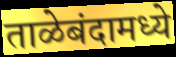
ताळेबंदामध्ये